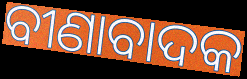
ବୀଣାବାଦକ